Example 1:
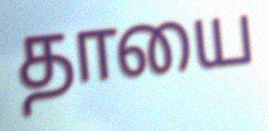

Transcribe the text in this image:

தாயை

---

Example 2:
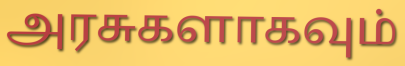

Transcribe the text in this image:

அரசுகளாகவும்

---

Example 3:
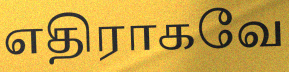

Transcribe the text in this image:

எதிராகவே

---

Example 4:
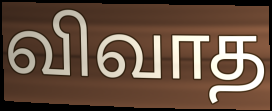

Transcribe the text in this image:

விவாத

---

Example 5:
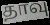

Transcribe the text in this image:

தாவு